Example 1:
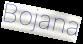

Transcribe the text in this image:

Bojana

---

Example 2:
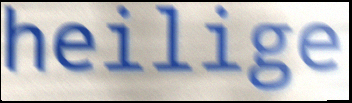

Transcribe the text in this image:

heilige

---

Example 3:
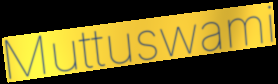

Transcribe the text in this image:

Muttuswami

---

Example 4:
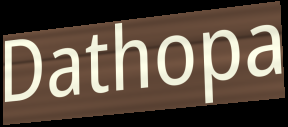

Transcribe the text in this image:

Dathopa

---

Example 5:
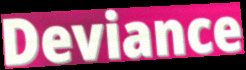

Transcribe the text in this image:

Deviance